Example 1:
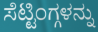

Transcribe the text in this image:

ಸೆಟ್ಟಿಂಗ್ಗಳನ್ನು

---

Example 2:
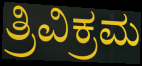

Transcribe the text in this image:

ತ್ರಿವಿಕ್ರಮ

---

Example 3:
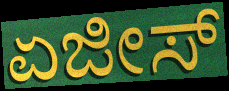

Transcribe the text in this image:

ಏಜೀಸ್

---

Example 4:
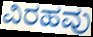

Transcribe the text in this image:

ವಿರಹವು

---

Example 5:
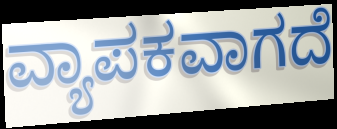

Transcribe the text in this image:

ವ್ಯಾಪಕವಾಗದೆ